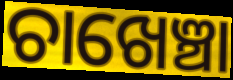
ଚାଖେଞ୍ଚା